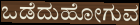
ಒಡೆದುಹೋಗುವ